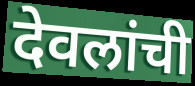
देवलांची